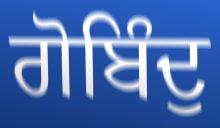
ਗੋਬਿੰਦੁ